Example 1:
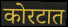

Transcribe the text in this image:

कोरटात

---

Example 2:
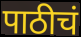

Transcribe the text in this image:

पाठीचं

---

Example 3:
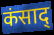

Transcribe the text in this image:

कंसाद्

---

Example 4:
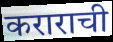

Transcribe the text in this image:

कराराची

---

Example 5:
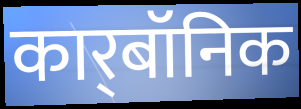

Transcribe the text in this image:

कार्‌बॉनिक